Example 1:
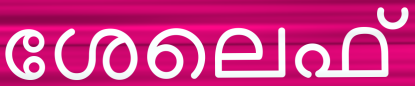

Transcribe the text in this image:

ശേലെഫ്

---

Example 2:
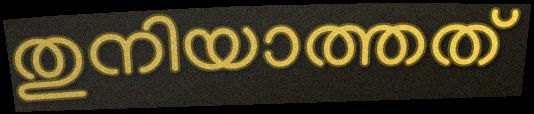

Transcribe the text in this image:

തുനിയാത്തത്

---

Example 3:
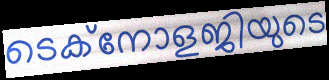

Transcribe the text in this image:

ടെക്നോളജിയുടെ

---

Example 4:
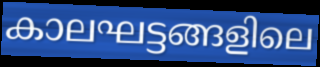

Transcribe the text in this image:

കാലഘട്ടങ്ങളിലെ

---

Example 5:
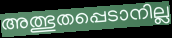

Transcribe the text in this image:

അത്ഭുതപ്പെടാനില്ല